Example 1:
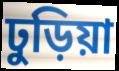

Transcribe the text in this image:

ঢুড়িয়া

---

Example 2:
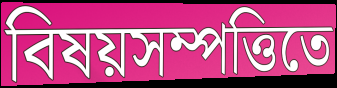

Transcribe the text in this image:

বিষয়সম্পত্তিতে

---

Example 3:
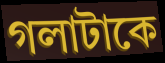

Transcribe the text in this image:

গলাটাকে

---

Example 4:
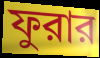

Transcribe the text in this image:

ফুরার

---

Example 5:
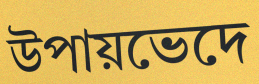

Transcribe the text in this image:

উপায়ভেদে